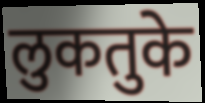
लुकतुके